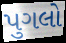
પુગલો